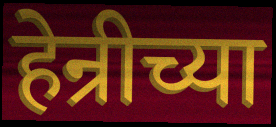
हेन्रीच्या